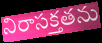
నిరాసక్తతను